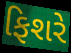
ફિશરે